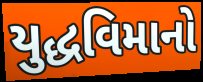
યુદ્ધવિમાનો